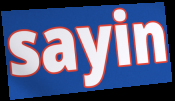
sayin